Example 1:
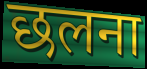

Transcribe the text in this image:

छलना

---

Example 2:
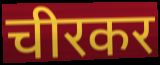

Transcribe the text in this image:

चीरकर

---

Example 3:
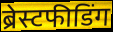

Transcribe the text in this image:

ब्रेस्टफीडिंग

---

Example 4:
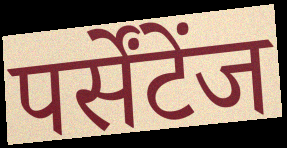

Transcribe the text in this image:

पर्सेंटेंज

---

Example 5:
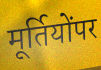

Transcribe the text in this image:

मूर्तियोंपर